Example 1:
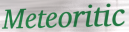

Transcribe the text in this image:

Meteoritic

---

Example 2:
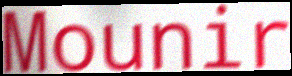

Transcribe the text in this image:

Mounir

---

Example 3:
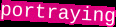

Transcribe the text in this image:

portraying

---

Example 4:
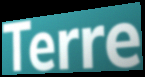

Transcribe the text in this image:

Terre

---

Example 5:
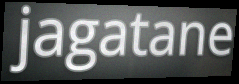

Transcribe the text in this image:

jagatane